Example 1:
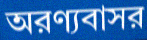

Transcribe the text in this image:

অরণ্যবাসর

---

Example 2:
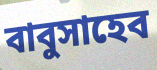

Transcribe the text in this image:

বাবুসাহেব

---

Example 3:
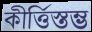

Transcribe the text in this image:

কীর্ত্তিস্তম্ভ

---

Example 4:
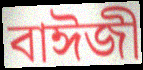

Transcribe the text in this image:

বাঈজী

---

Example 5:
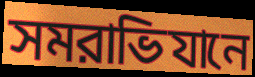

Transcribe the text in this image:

সমরাভিযানে